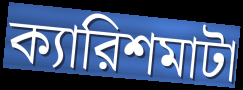
ক্যারিশমাটা